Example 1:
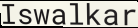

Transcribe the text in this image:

Iswalkar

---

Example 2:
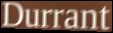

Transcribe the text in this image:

Durrant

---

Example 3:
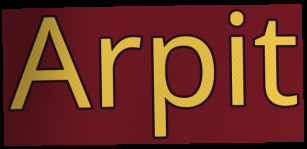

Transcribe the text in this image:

Arpit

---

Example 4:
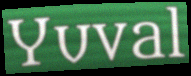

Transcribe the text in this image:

Yuval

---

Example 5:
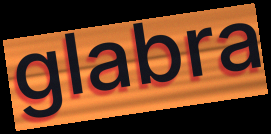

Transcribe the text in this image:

glabra